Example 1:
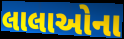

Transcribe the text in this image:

લાલાઓના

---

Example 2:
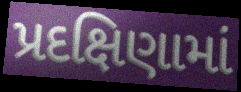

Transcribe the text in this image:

પ્રદક્ષિણામાં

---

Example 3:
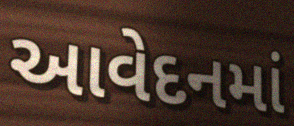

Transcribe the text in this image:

આવેદનમાં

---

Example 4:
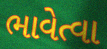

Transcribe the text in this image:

ભાવેત્વા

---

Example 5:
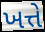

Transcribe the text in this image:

ખત્તે